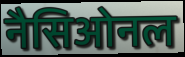
नैसिओनल